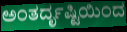
ಅಂತರ್ದೃಷ್ಟಿಯಿಂದ